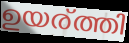
ഉയര്ത്തി